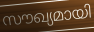
സൗഖ്യമായി